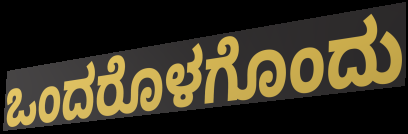
ಒಂದರೊಳಗೊಂದು